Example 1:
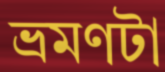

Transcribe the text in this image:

ভ্রমণটা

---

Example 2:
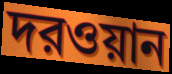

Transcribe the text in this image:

দরওয়ান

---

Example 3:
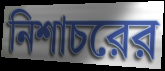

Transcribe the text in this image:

নিশাচরের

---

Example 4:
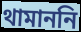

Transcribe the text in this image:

থামাননি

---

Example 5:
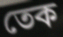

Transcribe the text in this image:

তেক